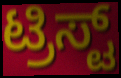
ಟ್ರಿಸ್ಟ್